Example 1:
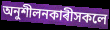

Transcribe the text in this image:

অনুশীলনকাৰীসকলে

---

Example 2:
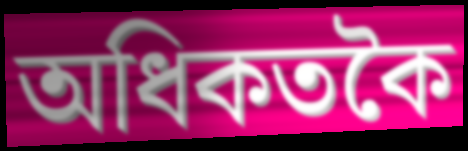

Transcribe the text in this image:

অধিকতকৈ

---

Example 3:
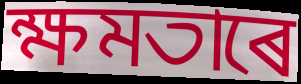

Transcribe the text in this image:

ক্ষমতাৰে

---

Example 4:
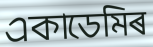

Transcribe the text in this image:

একাডেমিৰ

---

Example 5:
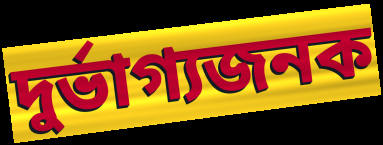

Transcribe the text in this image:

দুৰ্ভাগ্যজনক